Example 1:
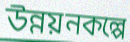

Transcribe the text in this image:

উন্নয়নকল্পে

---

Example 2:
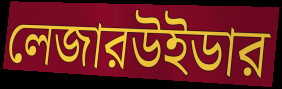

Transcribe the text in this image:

লেজারউইডার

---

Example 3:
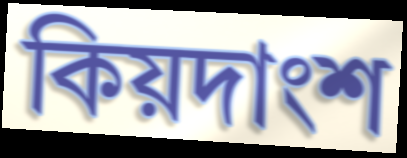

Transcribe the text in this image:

কিয়দাংশ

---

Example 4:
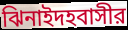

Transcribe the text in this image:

ঝিনাইদহবাসীর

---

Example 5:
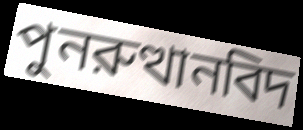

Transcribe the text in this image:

পুনরুত্থানবিদ